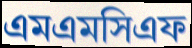
এমএমসিএফ